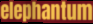
elephantum